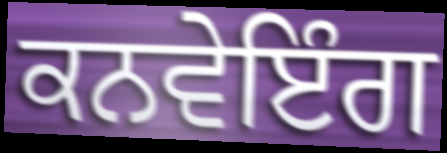
ਕਨਵੇਇੰਗ